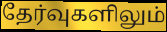
தேர்வுகளிலும்